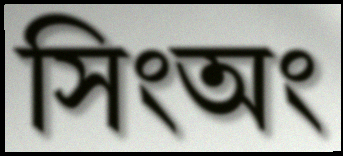
সিংঅং